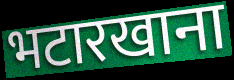
भटारखाना